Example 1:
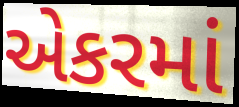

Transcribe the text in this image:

એકરમાં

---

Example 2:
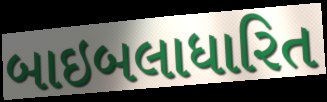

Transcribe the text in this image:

બાઇબલાધારિત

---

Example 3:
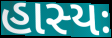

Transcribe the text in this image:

હાસ્યઃ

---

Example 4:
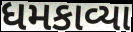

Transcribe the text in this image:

ધમકાવ્યા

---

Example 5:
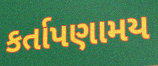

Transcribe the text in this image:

કર્તાપણામય